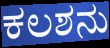
ಕಲಶನು